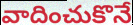
వాదించుకొనే